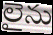
లైను